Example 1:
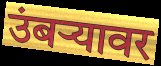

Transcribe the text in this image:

उंबर्‍यावर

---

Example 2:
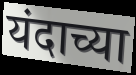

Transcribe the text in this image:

यंदाच्या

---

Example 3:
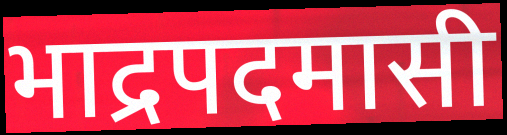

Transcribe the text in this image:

भाद्रपदमासी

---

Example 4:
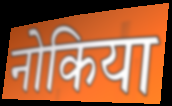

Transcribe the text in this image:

नोकिया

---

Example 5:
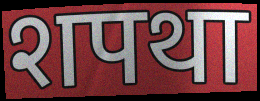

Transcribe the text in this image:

शपथा